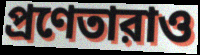
প্রণেতারাও